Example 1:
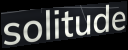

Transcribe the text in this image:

solitude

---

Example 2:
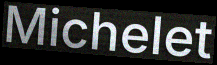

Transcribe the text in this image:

Michelet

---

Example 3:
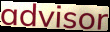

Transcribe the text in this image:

advisor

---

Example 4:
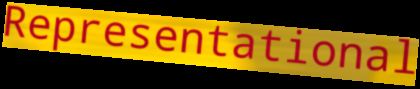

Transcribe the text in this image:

Representational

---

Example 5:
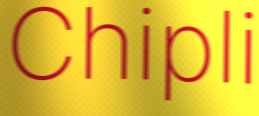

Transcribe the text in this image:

Chipli